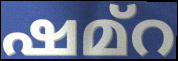
ഷമ്റ